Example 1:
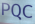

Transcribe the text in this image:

PQC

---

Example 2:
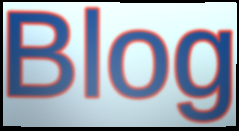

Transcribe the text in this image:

Blog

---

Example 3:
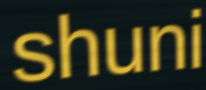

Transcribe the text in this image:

shuni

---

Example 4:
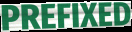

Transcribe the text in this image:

PREFIXED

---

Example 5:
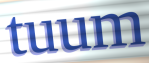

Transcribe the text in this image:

tuum